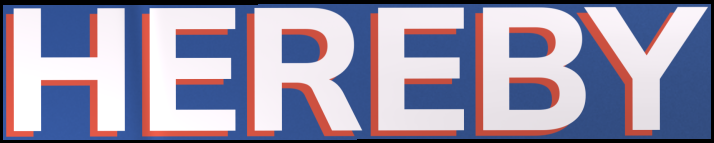
HEREBY